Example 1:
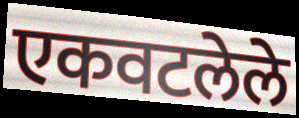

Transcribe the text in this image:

एकवटलेले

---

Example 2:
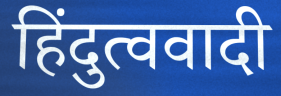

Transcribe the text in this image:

हिंदुत्ववादी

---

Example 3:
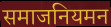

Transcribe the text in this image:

समाजनियमन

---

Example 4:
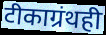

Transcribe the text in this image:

टीकाग्रंथही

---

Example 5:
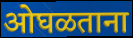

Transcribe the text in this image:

ओघळताना